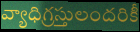
వ్యాధిగ్రస్తులందరికీ